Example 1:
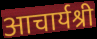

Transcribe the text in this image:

आचार्यश्री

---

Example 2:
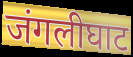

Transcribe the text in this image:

जंगलीघाट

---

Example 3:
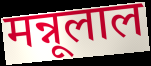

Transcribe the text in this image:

मन्नूलाल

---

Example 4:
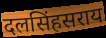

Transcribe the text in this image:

दलसिंहसराय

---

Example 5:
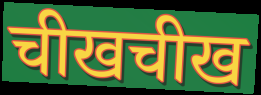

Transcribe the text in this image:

चीखचीख